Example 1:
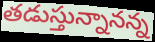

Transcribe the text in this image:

తడుస్తున్నానన్న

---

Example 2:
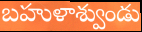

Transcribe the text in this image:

బహుళాశ్వుండు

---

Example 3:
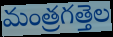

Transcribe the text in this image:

మంత్రగత్తెల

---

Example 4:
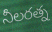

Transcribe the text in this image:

నీలరత్న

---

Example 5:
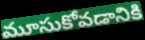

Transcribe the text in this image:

మూసుకోవడానికి